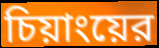
চিয়াংয়ের